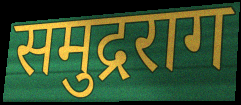
समुद्रराग